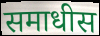
समाधीस